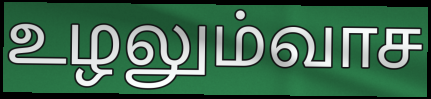
உழலும்வாச